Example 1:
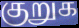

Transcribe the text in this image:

குறுக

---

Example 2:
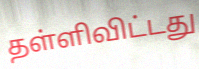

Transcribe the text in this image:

தள்ளிவிட்டது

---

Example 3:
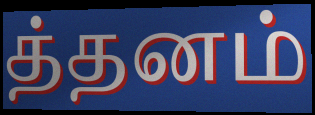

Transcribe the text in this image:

த்தனம்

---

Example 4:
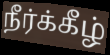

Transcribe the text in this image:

நீர்க்கீழ்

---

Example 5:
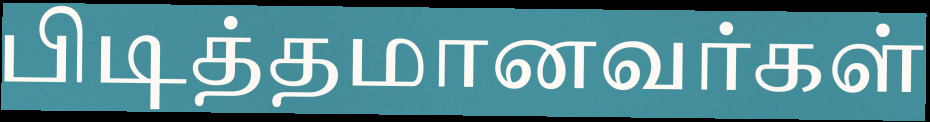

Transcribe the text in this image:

பிடித்தமானவர்கள்